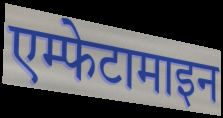
एम्फेटामाइन